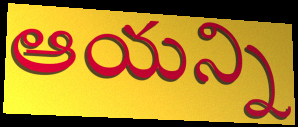
ఆయన్ని